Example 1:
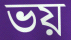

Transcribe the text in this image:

ভয়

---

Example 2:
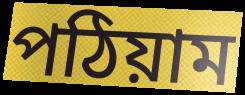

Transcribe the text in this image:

পঠিয়াম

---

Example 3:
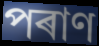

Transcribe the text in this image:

পৰাণ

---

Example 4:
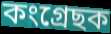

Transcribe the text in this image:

কংগ্ৰেছক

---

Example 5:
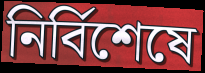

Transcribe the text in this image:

নিৰ্বিশেষে